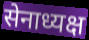
सेनाध्यक्ष